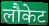
लौकेट